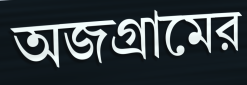
অজগ্রামের